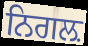
ਨਿਗਲ਼